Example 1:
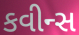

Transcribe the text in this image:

કવીન્સ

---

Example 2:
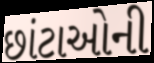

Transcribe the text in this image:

છાંટાઓની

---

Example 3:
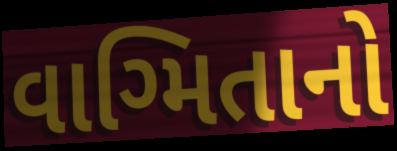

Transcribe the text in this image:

વાગ્મિતાનો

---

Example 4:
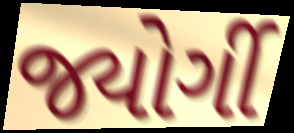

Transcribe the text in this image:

જ્યોર્ગી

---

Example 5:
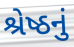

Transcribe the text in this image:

શ્રેષ્ઠનું